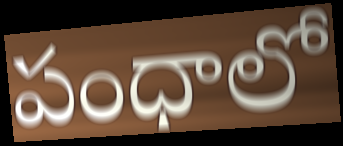
పంధాలో